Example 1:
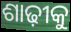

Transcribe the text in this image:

ଶାଢ଼ୀକୁ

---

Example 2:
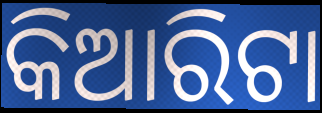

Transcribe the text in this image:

କିଆରିଟା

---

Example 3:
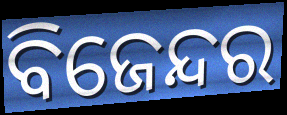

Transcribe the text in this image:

ବିଜେନ୍ଦର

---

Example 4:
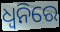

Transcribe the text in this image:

ଧ୍ଵନିରେ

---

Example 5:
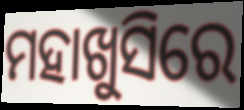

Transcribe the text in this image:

ମହାଖୁସିରେ